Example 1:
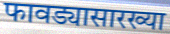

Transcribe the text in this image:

फावड्यासारख्या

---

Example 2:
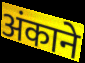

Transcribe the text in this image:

अंकाने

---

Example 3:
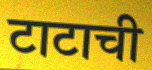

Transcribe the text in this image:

टाटाची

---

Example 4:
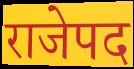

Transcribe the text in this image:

राजेपद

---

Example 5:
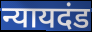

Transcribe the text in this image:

न्यायदंड